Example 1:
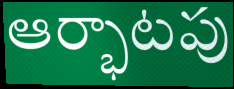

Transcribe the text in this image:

ఆర్భాటపు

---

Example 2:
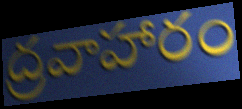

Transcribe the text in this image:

ద్రవాహారం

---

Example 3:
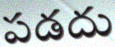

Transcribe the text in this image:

పడదు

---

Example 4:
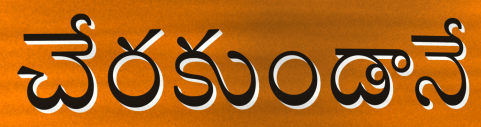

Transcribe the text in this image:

చేరకుండానే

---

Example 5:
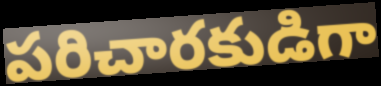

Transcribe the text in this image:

పరిచారకుడిగా